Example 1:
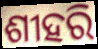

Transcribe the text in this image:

ଶୀହରି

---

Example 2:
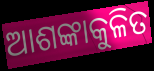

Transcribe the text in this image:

ଆଶଙ୍କାକୁଳିତ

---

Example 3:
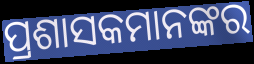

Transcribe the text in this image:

ପ୍ରଶାସକମାନଙ୍କର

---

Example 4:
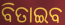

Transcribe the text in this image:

ବିତାଇବ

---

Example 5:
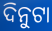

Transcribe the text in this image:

ଦିନୁଟା